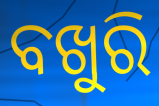
ବଖୁରି